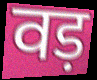
वड़